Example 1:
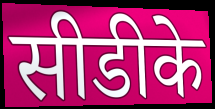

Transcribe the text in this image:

सीडीके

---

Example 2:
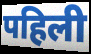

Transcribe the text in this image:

पहिली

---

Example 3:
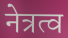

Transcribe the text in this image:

नेत्रत्व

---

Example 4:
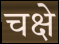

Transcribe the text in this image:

चक्षे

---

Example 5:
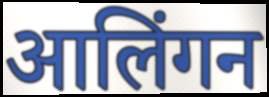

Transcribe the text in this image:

आलिंगन